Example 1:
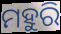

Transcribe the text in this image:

ମହୁରି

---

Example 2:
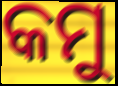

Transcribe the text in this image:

କମୁ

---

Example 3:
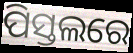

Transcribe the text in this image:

ପିସ୍ତଲରେ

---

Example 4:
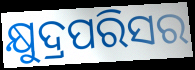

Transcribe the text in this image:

କ୍ଷୁଦ୍ରପରିସର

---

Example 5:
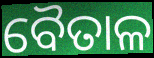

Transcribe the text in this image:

ବୈତାଳ